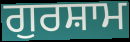
ਗੁਰਸ਼ਾਮ